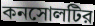
কনসোলটির